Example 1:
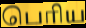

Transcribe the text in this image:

பெரிய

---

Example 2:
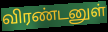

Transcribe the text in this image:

விரண்டனுள்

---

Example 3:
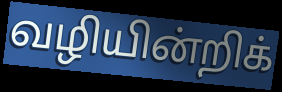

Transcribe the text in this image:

வழியின்றிக்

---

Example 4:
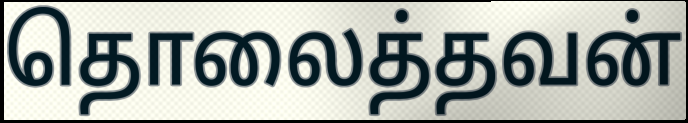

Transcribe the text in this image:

தொலைத்தவன்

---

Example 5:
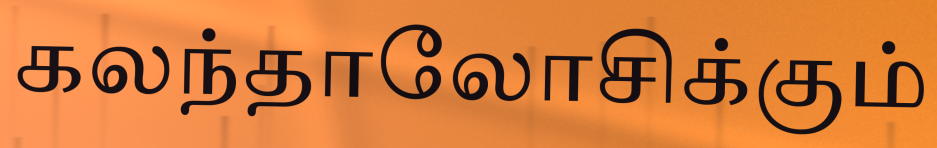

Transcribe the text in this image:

கலந்தாலோசிக்கும்